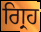
ਗ੍ਰਿਹ